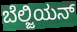
ಬೆಲ್ಜಿಯನ್